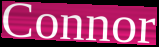
Connor